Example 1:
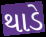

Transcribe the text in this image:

થાડે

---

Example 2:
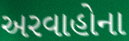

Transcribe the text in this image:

અરવાહોના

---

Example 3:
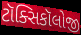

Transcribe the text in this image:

ટૉક્સિકૉલોજી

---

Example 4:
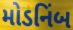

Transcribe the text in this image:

મોડનિંબ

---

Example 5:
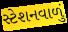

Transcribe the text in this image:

સ્ટેશનવાળું